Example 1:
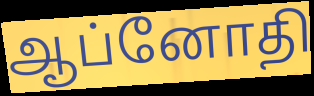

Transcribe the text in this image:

ஆப்னோதி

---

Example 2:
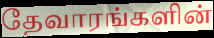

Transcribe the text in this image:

தேவாரங்களின்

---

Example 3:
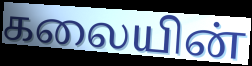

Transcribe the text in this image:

கலையின்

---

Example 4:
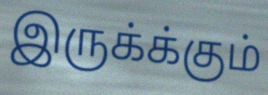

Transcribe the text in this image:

இருக்க்கும்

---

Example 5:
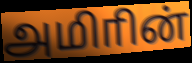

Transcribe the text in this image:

அமிரின்